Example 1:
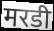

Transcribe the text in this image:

मरडी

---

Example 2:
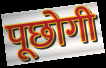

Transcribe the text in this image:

पूछोगी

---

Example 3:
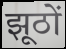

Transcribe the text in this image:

झूठों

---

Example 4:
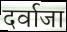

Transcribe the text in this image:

दर्वाजा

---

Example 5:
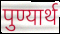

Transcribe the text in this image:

पुण्यार्थ